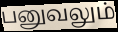
பனுவலும்